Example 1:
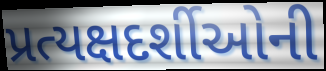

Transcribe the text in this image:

પ્રત્યક્ષદર્શીઓની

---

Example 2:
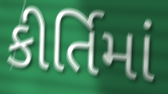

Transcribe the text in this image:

કીર્તિમાં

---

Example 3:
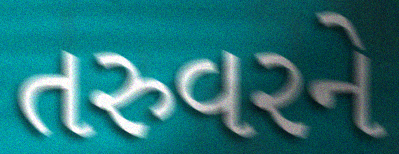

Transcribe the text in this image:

તરુવરને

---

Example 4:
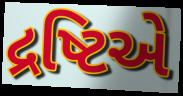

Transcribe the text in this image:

દ્રષ્ટિએ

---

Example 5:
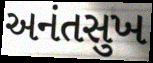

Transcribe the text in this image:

અનંતસુખ